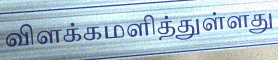
விளக்கமளித்துள்ளது